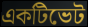
একটিভেট